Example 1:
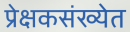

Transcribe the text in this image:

प्रेक्षकसंख्येत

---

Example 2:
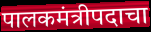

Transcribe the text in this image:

पालकमंत्रीपदाचा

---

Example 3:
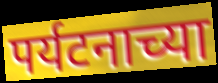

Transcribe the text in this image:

पर्यटनाच्या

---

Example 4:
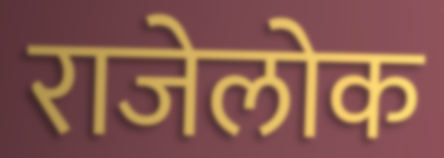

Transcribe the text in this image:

राजेलोक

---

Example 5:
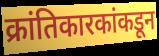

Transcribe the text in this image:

क्रांतिकारकांकडून